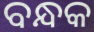
ବନ୍ଧକ